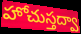
హోచుస్తద్వా